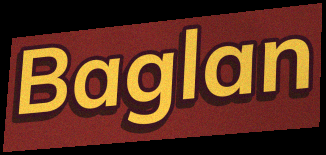
Baglan